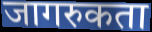
जागरुकता